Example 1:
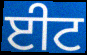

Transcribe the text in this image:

ਈਟ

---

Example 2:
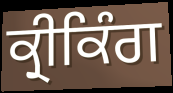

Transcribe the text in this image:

ਕ੍ਰੀਕਿੰਗ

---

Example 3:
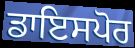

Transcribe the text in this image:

ਡਾਇਸਪੋਰ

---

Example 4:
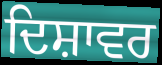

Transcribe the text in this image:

ਦਿਸ਼ਾਵਰ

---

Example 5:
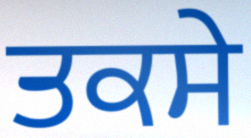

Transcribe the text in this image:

ਤਕਸੇ